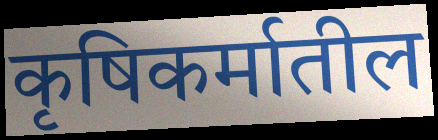
कृषिकर्मातील